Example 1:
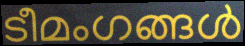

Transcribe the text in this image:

ടീമംഗങ്ങൾ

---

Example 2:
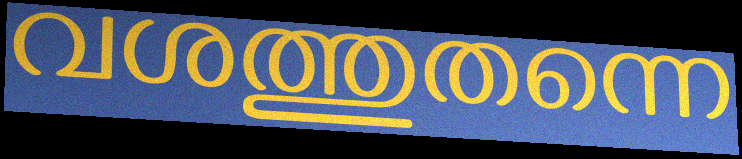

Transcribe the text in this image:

വശത്തുതന്നെ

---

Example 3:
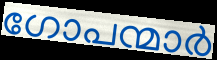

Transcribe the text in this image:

ഗോപന്മാർ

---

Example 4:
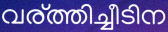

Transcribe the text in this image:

വര്ത്തിച്ചീടിന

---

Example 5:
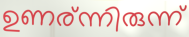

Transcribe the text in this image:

ഉണര്ന്നിരുന്ന്